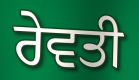
ਰੇਵਤੀ